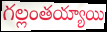
గల్లంతయ్యాయి